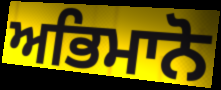
ਅਭਿਮਾਨੋ